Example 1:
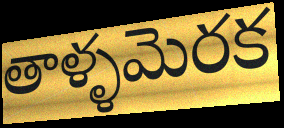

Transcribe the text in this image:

తాళ్ళమెరక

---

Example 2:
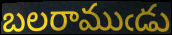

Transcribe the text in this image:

బలరాముఁడు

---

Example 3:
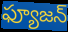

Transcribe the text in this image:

ఫ్యూజన్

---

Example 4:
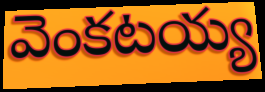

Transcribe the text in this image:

వెంకటయ్య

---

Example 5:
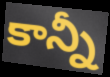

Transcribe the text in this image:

కాన్నీ